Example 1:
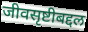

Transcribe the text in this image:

जीवसृष्टीबद्दल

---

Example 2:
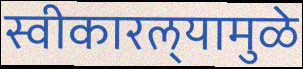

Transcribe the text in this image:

स्वीकारल्यामुळे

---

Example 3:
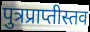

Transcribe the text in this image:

पुत्रप्राप्तीस्तव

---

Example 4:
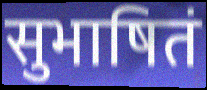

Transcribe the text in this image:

सुभाषितं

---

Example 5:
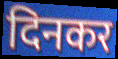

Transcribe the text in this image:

दिनकर